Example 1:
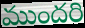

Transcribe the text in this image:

ముందరి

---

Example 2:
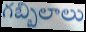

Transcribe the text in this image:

గబ్బిలాలు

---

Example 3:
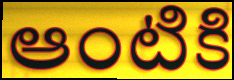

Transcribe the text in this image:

ఆంటికి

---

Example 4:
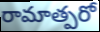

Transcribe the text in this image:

రామాత్పరో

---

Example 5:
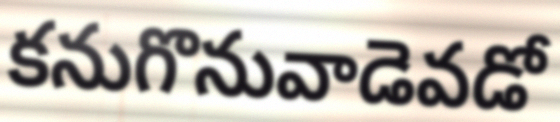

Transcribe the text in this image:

కనుగొనువాడెవడో